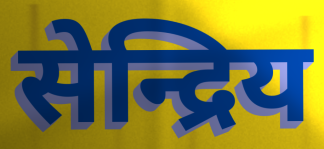
सेन्द्रिय